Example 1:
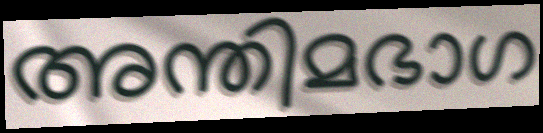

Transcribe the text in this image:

അന്തിമഭാഗ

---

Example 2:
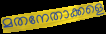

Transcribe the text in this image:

മതനേതാക്കളെ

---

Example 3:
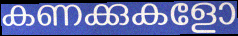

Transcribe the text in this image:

കണക്കുകളോ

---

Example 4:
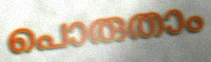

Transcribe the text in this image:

പൊരുതാം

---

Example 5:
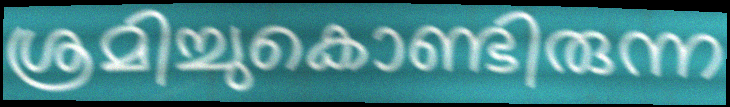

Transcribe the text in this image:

ശ്രമിച്ചുകൊണ്ടിരുന്ന